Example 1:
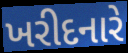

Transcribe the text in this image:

ખરીદનારે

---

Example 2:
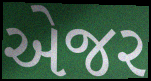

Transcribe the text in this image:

એજર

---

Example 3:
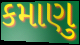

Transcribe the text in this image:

કમાણુ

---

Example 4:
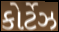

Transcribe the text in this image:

કોર્ટેઝ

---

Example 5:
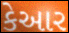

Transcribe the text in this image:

કેઆર